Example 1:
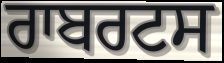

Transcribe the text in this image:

ਰਾਬਰਟਸ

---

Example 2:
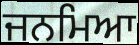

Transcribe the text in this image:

ਜਨਮਿਆ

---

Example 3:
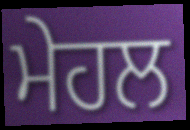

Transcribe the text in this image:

ਮੇਹਲ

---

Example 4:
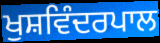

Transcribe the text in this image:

ਖੁਸ਼ਵਿੰਦਰਪਾਲ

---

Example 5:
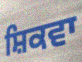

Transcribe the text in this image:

ਸ਼ਿਕਵਾ